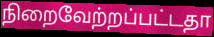
நிறைவேற்றப்பட்டதா